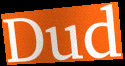
Dud